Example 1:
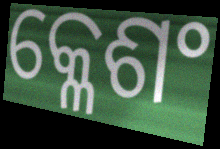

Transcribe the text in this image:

କ୍ଳେଶଂ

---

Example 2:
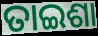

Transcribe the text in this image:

ତାଇଶା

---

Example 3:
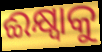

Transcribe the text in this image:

ଈକ୍ଷ୍ୱାକୁ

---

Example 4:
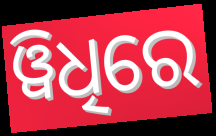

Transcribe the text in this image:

ୱିଧିରେ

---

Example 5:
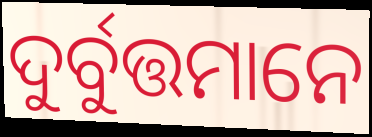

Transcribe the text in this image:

ଦୁର୍ବୁତ୍ତମାନେ